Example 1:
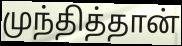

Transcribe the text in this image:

முந்தித்தான்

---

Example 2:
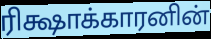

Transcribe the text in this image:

ரிக்ஷாக்காரனின்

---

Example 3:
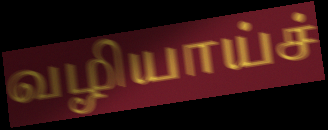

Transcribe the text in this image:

வழியாய்ச்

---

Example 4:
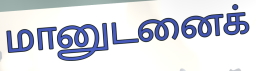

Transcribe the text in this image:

மானுடனைக்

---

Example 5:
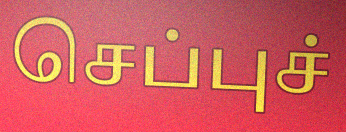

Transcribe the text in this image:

செப்புச்